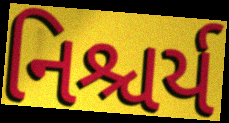
નિશ્ચર્ય